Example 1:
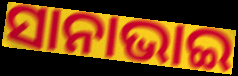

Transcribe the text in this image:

ସାନାଭାଇ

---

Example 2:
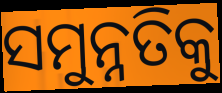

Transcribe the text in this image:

ସମୁନ୍ନତିକୁ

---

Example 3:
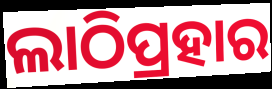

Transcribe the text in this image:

ଲାଠିପ୍ରହାର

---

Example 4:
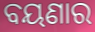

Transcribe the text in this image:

ବୟଣାର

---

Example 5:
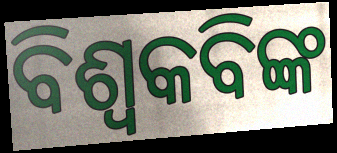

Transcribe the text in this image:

ବିଶ୍ୱକବିଙ୍କ